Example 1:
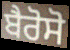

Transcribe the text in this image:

ਬੈਰੋਸੋ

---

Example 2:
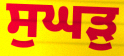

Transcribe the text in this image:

ਸੁਘੜੁ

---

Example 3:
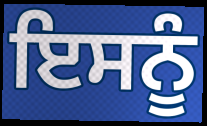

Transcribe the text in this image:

ਇਸਨੂੰ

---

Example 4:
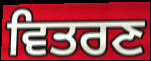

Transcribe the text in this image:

ਵਿਤਰਣ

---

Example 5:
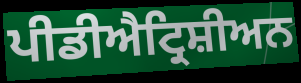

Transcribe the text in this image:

ਪੀਡੀਐਟ੍ਰਿਸ਼ੀਅਨ